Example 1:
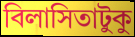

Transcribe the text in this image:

বিলাসিতাটুকু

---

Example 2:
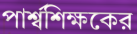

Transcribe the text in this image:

পার্শ্বশিক্ষকের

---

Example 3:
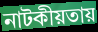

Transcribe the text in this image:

নাটকীয়তায়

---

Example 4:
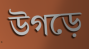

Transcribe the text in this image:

উগড়ে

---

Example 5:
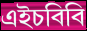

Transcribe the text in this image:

এইচবিবি